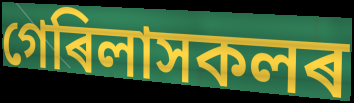
গেৰিলাসকলৰ